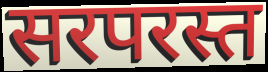
सरपरस्त